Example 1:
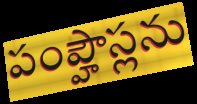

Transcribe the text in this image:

పంప్హౌస్లను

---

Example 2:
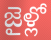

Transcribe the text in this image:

జైళ్లో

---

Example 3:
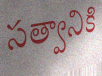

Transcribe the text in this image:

సత్వానికి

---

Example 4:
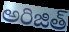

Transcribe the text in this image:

అరిజిత్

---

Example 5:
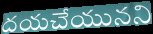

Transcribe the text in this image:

దయచేయునని